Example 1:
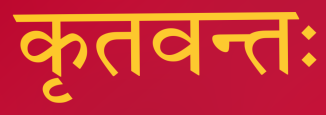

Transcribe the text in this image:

कृतवन्तः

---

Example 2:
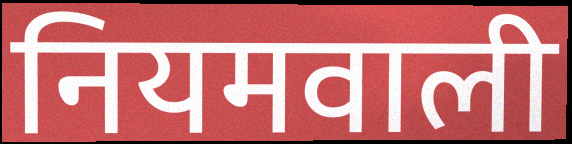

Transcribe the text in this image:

नियमवाली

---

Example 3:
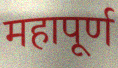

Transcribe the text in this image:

महापूर्ण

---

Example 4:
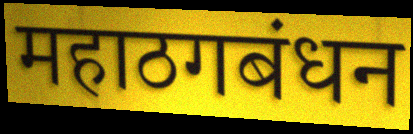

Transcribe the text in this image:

महाठगबंधन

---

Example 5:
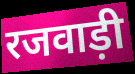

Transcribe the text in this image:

रजवाड़ी